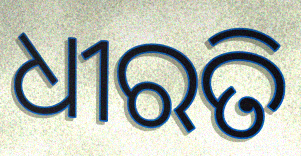
ଧୀରତି